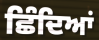
ਛਿੰਦਿਆਂ